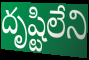
దృష్టిలేని